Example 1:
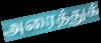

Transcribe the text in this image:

அரைத்துக்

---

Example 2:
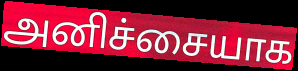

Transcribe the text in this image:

அனிச்சையாக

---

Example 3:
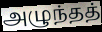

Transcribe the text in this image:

அழுந்தத்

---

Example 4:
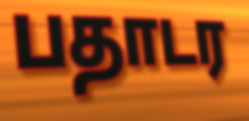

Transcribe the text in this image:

பதாடர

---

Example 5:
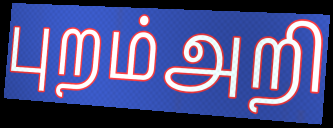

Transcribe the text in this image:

புறம்அறி